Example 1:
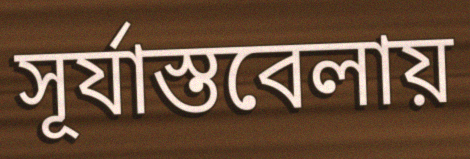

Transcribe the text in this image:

সূর্যাস্তবেলায়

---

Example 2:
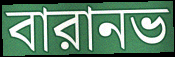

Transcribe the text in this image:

বারানভ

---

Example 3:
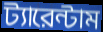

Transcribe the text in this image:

ট্যারেন্টাম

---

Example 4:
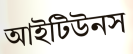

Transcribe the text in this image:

আইটিউনস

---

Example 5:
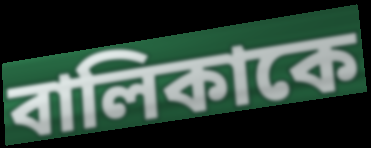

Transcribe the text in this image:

বালিকাকে